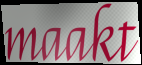
maakt